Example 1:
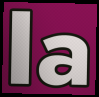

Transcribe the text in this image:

Ia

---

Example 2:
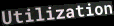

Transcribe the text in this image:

Utilization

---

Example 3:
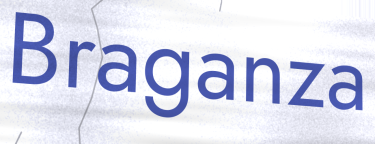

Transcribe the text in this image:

Braganza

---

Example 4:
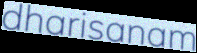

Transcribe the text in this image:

dharisanam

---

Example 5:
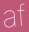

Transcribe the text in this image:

af